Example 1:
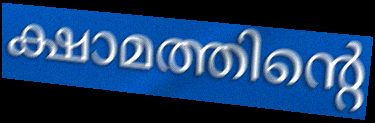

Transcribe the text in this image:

ക്ഷാമത്തിന്റെ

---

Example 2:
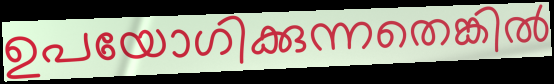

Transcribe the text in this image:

ഉപയോഗിക്കുന്നതെങ്കിൽ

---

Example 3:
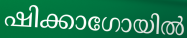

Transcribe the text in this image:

ഷിക്കാഗോയിൽ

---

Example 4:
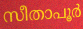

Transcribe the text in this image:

സീതാപൂർ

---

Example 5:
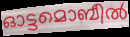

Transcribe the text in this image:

ഓട്ടമൊബീൽ